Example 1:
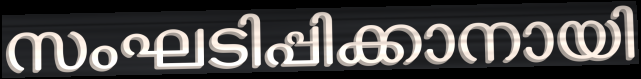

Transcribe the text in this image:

സംഘടിപ്പിക്കാനായി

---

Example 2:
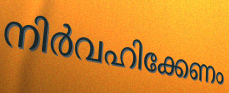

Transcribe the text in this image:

നിർവഹിക്കേണം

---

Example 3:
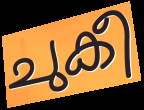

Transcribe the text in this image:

ചുകീ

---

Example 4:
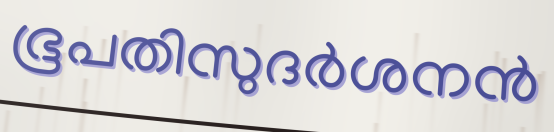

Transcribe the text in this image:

ഭൂപതിസുദർശനൻ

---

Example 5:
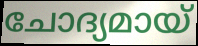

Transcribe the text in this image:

ചോദ്യമായ്